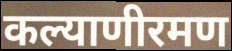
कल्याणीरमण